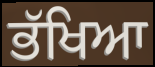
ਭੱਖਿਆ